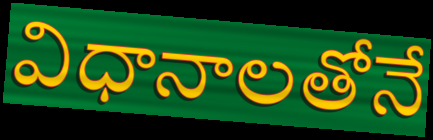
విధానాలతోనే